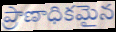
ప్రాణాధికమైన